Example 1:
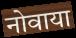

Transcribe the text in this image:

नोवाया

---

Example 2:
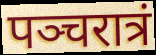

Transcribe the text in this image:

पञ्चरात्रं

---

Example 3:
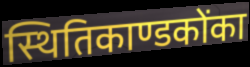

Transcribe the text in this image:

स्थितिकाण्डकोंका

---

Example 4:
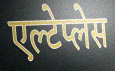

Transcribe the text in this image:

एल्टेप्लेस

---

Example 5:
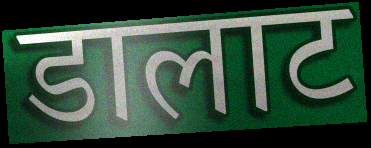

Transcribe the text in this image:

डालाट